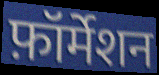
फ़ॉर्मेशन